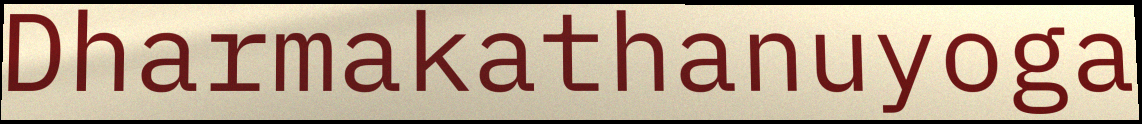
Dharmakathanuyoga